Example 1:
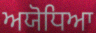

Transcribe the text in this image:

ਅਯੋਧਿਆ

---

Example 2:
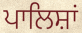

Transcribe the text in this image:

ਪਾਲਿਸ਼ਾਂ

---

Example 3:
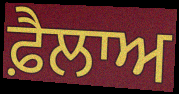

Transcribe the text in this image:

ਫ਼ੈਲਾਅ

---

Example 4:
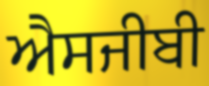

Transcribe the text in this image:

ਐਸਜੀਬੀ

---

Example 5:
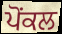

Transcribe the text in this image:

ਪੋਂਕਲ